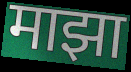
माझा